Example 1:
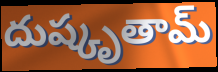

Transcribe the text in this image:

దుష్కృతామ్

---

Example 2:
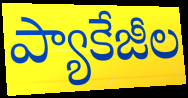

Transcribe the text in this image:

ప్యాకేజీల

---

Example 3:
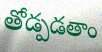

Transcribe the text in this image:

తోడ్పడతాం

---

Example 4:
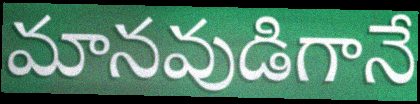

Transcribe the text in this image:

మానవుడిగానే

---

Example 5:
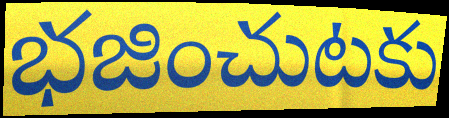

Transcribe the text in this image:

భజించుటకు